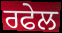
ਰਫੇਲ